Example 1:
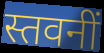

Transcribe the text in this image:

स्तवनीं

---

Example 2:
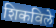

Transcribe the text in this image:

शिकविले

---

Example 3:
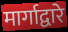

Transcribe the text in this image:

मार्गाद्वारे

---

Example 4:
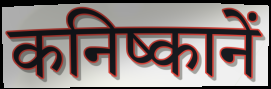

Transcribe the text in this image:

कनिष्कानें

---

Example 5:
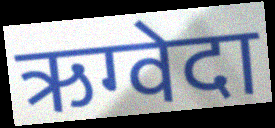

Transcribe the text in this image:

ऋग्वेदा